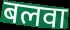
बलवा